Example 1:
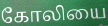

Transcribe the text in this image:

கோலியை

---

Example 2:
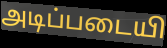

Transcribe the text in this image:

அடிப்படையி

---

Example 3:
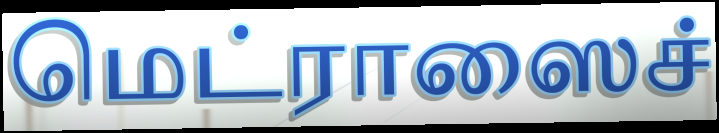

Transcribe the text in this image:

மெட்ராஸைச்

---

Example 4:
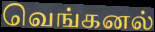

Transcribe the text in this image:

வெங்கனல்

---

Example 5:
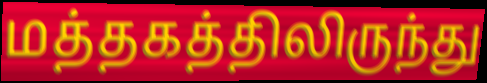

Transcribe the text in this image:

மத்தகத்திலிருந்து